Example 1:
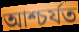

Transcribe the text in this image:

আশ্চৰ্যত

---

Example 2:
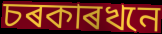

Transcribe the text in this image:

চৰকাৰখনে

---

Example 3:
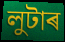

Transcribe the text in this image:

লুটাৰ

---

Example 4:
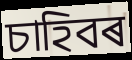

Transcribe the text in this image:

চাহিবৰ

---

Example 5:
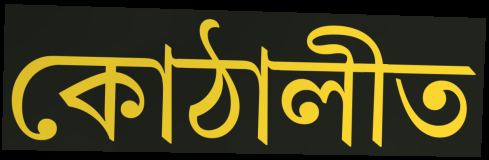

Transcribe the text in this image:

কোঠালীত